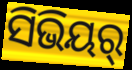
ସିଭିୟର୍